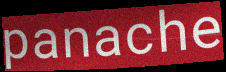
panache